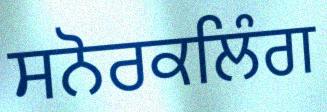
ਸਨੋਰਕਲਿੰਗ